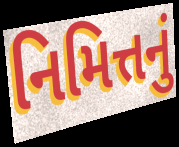
નિમિત્તનું